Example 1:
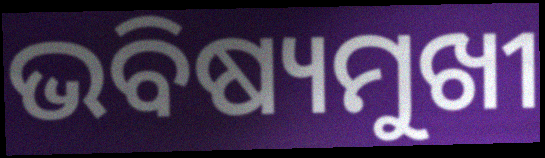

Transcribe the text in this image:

ଭବିଷ୍ୟମୁଖୀ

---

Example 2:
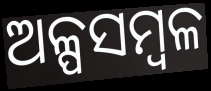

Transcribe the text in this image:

ଅଳ୍ପସମ୍ବଳ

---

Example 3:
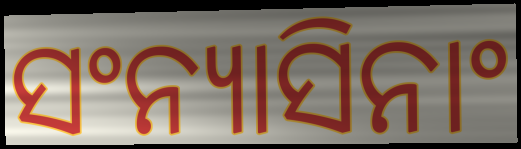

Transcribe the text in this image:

ସଂନ୍ୟାସିନାଂ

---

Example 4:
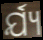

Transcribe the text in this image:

ର୍ଯ୍ୟ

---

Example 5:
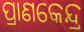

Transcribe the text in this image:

ପ୍ରାଣକେନ୍ଦ୍ର